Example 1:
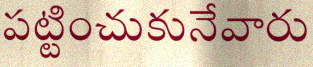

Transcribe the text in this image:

పట్టించుకునేవారు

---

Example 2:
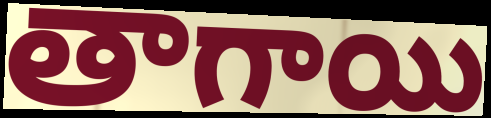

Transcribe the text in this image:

తాగాయి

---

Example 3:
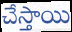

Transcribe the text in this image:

చేస్తాయి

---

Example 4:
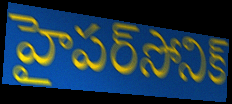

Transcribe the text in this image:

హైపర్‌సోనిక్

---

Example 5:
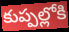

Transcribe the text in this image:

కుప్పల్లోకి